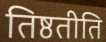
तिष्ठतीति